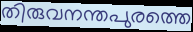
തിരുവനന്തപുരത്തെ